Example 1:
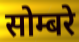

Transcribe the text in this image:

सोम्बरे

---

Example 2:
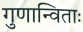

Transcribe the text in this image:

गुणान्विताः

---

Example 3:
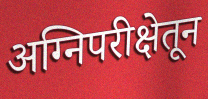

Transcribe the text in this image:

अग्निपरीक्षेतून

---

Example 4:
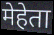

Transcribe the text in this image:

मेहेता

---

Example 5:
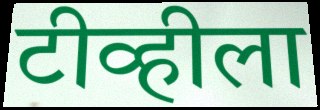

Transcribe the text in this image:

टीव्हीला